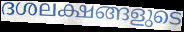
ദശലക്ഷങ്ങളുടെ